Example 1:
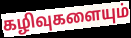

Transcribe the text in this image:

கழிவுகளையும்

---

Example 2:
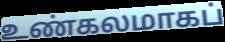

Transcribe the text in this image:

உண்கலமாகப்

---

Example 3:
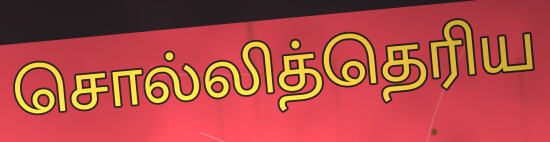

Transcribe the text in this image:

சொல்லித்தெரிய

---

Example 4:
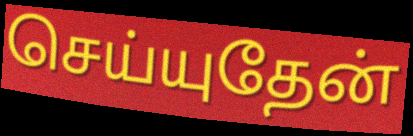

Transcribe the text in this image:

செய்யுதேன்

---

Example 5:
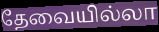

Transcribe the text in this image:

தேவையில்லா